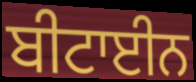
ਬੀਟਾਈਨ